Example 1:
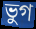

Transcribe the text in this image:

ভুগ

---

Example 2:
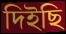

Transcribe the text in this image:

দিইছি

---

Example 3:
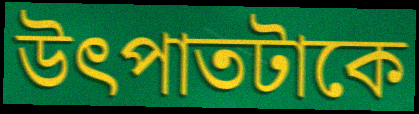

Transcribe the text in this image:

উৎপাতটাকে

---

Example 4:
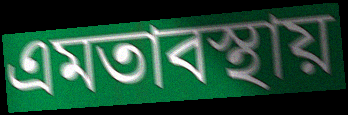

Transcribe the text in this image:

এমতাবস্থায়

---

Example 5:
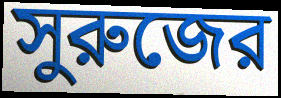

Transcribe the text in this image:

সুরুজের